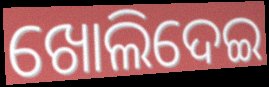
ଖୋଲିଦେଇ